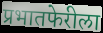
प्रभातफेरीला